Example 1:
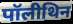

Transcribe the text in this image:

पॉलीथिन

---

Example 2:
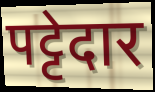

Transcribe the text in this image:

पट्टेदार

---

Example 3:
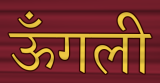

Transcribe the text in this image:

ऊँगली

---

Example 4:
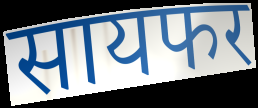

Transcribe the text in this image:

सायफर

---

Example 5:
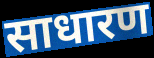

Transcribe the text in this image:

साधारण